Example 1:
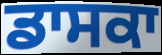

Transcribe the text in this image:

ਡਾਸਕਾ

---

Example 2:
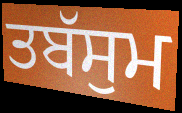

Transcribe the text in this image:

ਤਬੱਸੁਮ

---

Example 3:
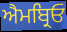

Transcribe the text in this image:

ਐਮਬ੍ਰਿਓ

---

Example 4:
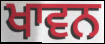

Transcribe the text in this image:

ਖਾਵਨ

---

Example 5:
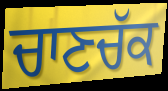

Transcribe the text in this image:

ਚਾਣਚੱਕ